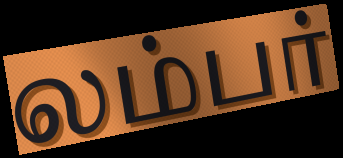
லம்பர்